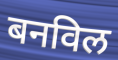
बनविल